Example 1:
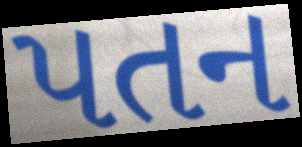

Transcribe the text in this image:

પતન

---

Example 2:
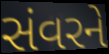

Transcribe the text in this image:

સંવરને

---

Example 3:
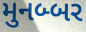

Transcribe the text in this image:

મુનબ્બર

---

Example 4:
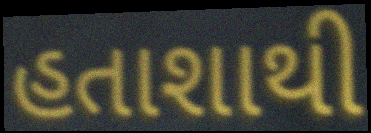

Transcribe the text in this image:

હતાશાથી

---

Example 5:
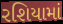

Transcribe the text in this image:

રશિયામાં